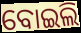
ବୋଇଲି